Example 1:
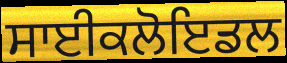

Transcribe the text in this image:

ਸਾਈਕਲੋਇਡਲ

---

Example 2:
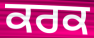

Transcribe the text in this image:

ਕਰਕ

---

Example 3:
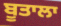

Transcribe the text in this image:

ਬੂਤਾਲਾ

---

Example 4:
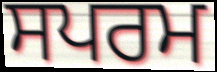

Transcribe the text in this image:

ਸਪਰਮ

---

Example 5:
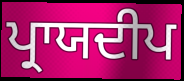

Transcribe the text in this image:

ਪ੍ਰਾਯਦੀਪ